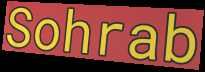
Sohrab